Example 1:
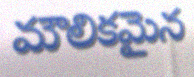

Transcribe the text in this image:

మౌలికమైన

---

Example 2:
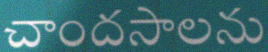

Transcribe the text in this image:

చాందసాలను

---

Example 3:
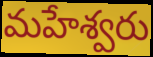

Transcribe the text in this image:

మహేశ్వరు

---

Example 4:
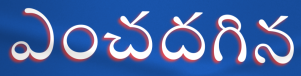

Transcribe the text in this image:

ఎంచదగిన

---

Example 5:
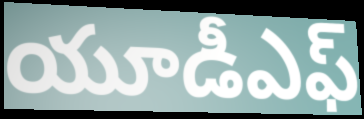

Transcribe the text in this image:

యూడీఎఫ్